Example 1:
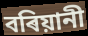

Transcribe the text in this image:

বৰিয়ানী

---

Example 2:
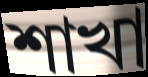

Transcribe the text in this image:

শাখা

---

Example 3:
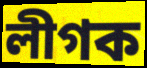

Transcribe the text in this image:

লীগক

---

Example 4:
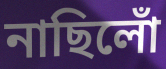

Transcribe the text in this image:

নাছিলোঁ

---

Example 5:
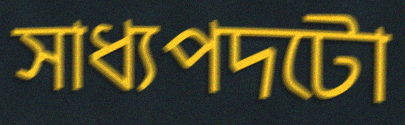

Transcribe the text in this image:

সাধ্যপদটো